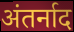
अंतर्नाद